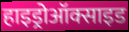
हाइड्रोऑक्साइड